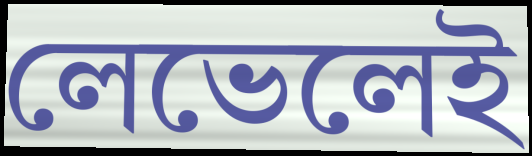
লেভেলেই